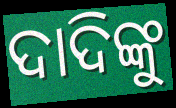
ଦାଦିଙ୍କୁ